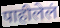
पाहीलेलं